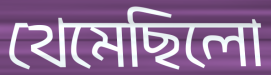
থেমেছিলো